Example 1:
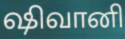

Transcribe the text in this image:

ஷிவானி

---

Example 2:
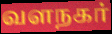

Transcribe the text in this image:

வளநகர்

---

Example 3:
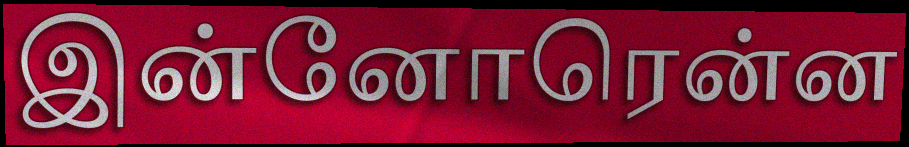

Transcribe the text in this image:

இன்னோரென்ன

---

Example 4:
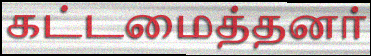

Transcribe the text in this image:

கட்டமைத்தனர்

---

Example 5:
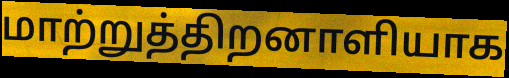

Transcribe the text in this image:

மாற்றுத்திறனாளியாக